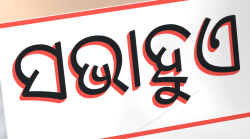
ସଭାହୁଏ